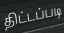
திட்டப்படி